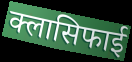
क्लासिफाई